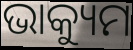
ଭାକ୍ୟୁମ